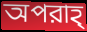
অপরাহ্